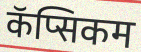
कॅप्सिकम